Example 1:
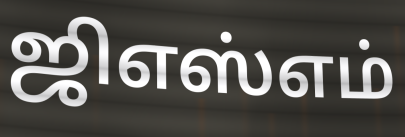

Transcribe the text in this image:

ஜிஎஸ்எம்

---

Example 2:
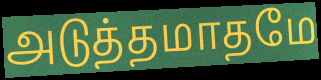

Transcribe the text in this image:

அடுத்தமாதமே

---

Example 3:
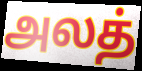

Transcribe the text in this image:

அலத்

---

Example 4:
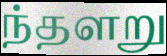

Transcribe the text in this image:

ந்தளறு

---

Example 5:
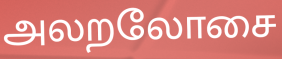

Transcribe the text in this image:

அலறலோசை